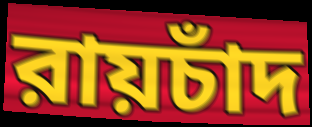
রায়চাঁদ